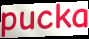
pucka